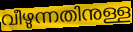
വീഴുന്നതിനുള്ള